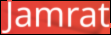
Jamrat